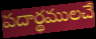
పదార్థములచే